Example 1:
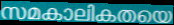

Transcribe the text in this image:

സമകാലികതയെ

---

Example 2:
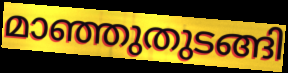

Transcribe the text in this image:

മാഞ്ഞുതുടങ്ങി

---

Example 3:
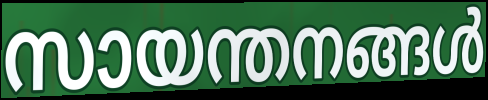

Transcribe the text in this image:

സായന്തനങ്ങൾ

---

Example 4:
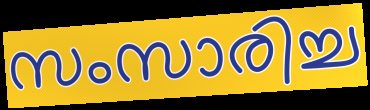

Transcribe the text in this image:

സംസാരിച്ച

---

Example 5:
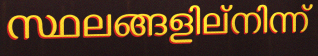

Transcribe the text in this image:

സ്ഥലങ്ങളില്നിന്ന്